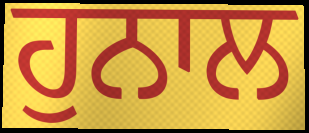
ਹੁਨਾਲ